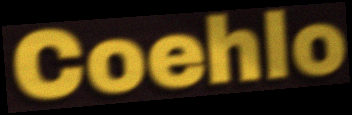
Coehlo